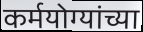
कर्मयोग्यांच्या